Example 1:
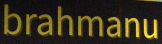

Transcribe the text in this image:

brahmanu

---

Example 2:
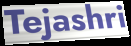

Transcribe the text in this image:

Tejashri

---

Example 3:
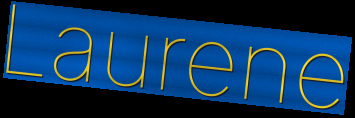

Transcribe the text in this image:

Laurene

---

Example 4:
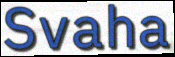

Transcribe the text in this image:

Svaha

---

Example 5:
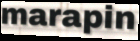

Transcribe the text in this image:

marapin